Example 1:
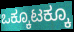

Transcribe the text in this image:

ಒಕ್ಕೂಟಕ್ಕೂ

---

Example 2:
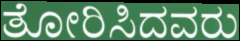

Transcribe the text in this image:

ತೋರಿಸಿದವರು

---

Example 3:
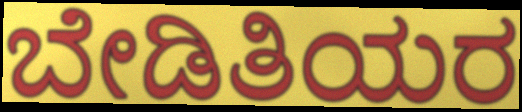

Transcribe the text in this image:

ಬೇಡಿತಿಯರ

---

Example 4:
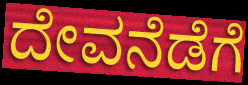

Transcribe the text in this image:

ದೇವನೆಡೆಗೆ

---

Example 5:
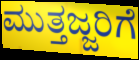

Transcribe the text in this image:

ಮುತ್ತಜ್ಜರಿಗೆ